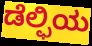
ಡೆಲ್ಫಿಯ